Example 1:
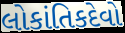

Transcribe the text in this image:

લોકાંતિકદેવો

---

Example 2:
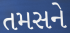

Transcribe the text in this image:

તમસને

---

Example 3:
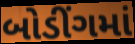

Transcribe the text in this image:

બોડીંગમાં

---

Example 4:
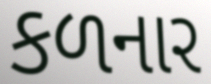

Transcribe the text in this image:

કળનાર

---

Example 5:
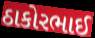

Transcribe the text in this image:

ઠાકોરભાઈ